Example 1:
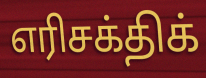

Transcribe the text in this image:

எரிசக்திக்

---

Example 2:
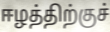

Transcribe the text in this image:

ஈழத்திற்குச்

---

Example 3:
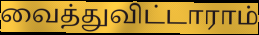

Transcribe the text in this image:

வைத்துவிட்டாராம்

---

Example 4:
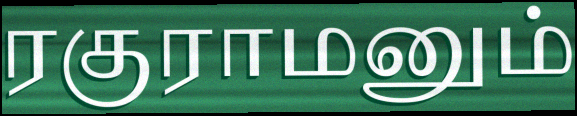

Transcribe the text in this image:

ரகுராமனும்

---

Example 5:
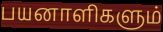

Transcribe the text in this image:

பயனாளிகளும்